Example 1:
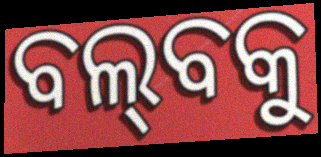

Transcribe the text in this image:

ବଲ୍‌ବକୁ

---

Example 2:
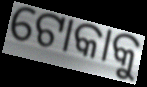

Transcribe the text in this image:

ଟୋକାକୁ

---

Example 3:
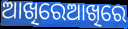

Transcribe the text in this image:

ଆଖିରେଆଖିରେ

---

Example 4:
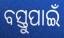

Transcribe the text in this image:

ବସ୍ତୁପାଇଁ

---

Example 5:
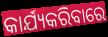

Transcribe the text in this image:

କାର୍ଯ୍ୟକରିବାରେ